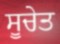
ਸੂਚੇਤ